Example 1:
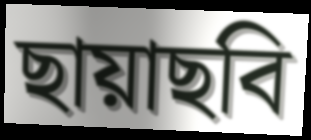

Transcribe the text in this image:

ছায়াছবি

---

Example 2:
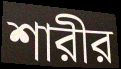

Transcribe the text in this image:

শারীর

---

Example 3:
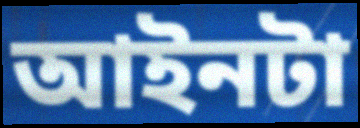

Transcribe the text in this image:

আইনটা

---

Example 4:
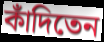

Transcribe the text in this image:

কাঁদিতেন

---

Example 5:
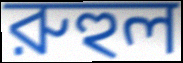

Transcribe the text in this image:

রুহুল